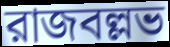
রাজবল্লভ